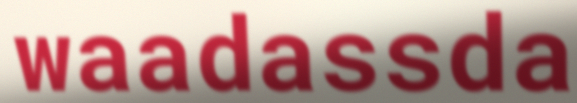
waadassda